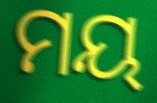
ମୟ